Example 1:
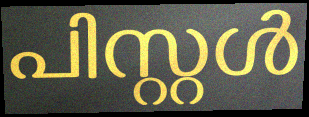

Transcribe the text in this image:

പിസ്റ്റൾ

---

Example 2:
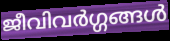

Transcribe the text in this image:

ജീവിവർഗ്ഗങ്ങൾ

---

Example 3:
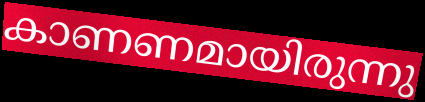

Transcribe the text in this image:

കാണണമായിരുന്നു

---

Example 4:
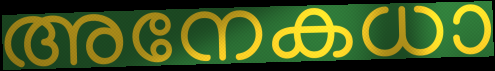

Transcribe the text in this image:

അനേകധാ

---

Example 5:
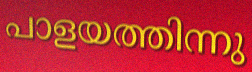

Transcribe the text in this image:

പാളയത്തിന്നു